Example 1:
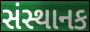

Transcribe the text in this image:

સંસ્થાનક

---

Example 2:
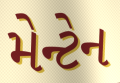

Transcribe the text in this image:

મેન્ટેન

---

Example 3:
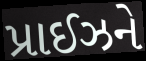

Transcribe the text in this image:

પ્રાઈઝને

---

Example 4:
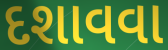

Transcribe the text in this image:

દશાવવા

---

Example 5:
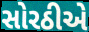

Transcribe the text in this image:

સોરઠીએ